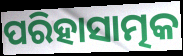
ପରିହାସାତ୍ମକ